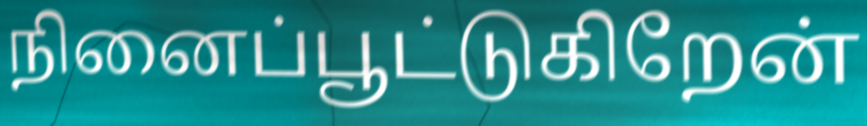
நினைப்பூட்டுகிறேன்